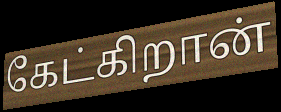
கேட்கிறான்